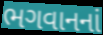
ભગવાનનાં